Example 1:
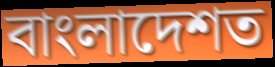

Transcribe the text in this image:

বাংলাদেশত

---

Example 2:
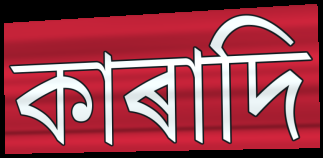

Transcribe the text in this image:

কাৰাদি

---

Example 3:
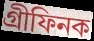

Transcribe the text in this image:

গ্ৰীফিনক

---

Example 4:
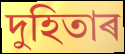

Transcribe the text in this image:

দুহিতাৰ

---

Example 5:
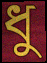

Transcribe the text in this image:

ধু